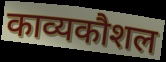
काव्यकौशल